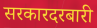
सरकारदरबारी